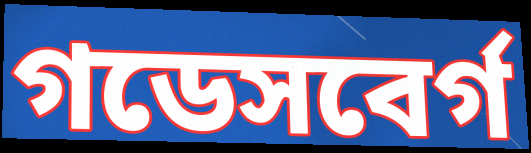
গডেসবের্গ